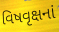
વિષવૃક્ષનાં